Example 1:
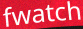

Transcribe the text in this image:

fwatch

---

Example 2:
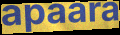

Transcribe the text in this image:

apaara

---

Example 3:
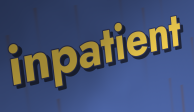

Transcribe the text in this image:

inpatient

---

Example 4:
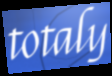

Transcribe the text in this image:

totaly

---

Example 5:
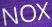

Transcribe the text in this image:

NOX